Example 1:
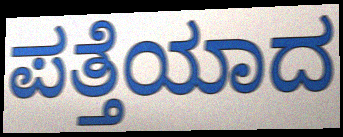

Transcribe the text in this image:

ಪತ್ತೆಯಾದ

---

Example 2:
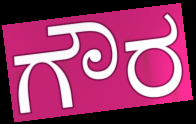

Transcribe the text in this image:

ಗೌರ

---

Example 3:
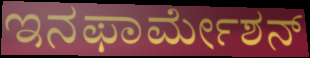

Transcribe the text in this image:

ಇನಫಾರ್ಮೇಶನ್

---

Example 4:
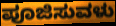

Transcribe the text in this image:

ಪೂಜಿಸುವಳು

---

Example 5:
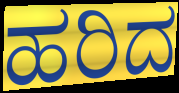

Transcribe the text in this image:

ಹರಿದ